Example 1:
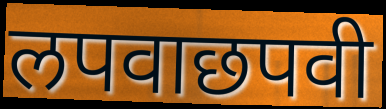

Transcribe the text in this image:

लपवाछपवी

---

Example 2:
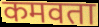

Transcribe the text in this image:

कमवता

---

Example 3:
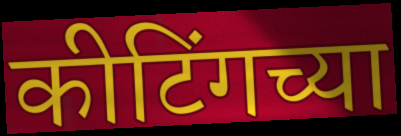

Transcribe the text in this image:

कीटिंगच्या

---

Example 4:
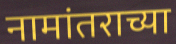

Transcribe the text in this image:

नामांतराच्या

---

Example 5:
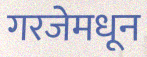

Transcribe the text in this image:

गरजेमधून